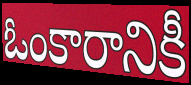
ఓంకారానికీ